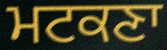
ਮਟਕਣਾ